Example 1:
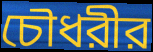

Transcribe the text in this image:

চৌধরীর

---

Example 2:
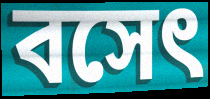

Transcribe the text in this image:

বসেৎ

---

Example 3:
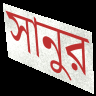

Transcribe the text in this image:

সানুর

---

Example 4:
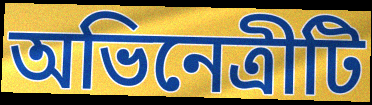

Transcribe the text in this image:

অভিনেত্রীটি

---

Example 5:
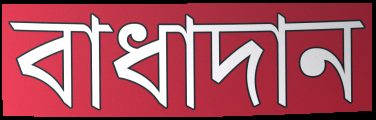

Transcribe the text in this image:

বাধাদান